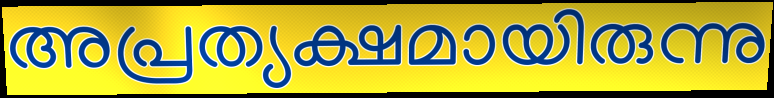
അപ്രത്യക്ഷമായിരുന്നു